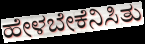
ಹೇಳಬೇಕೆನಿಸಿತು